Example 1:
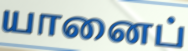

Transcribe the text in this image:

யானைப்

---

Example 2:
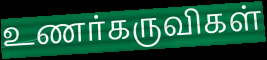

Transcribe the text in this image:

உணர்கருவிகள்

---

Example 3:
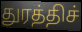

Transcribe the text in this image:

துரத்திச்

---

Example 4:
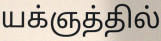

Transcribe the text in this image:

யக்ஞத்தில்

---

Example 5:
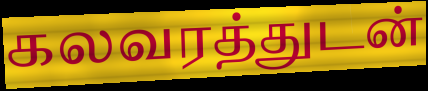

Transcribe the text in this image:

கலவரத்துடன்